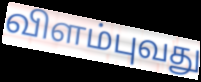
விளம்புவது